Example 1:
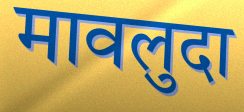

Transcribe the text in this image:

मावलुदा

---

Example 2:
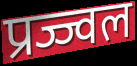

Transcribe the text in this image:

प्रज्ज्वल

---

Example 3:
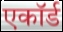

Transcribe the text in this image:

एकॉर्ड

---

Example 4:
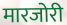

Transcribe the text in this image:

मारजोरी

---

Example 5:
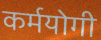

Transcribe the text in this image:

कर्मयोगी